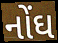
નોંઘ